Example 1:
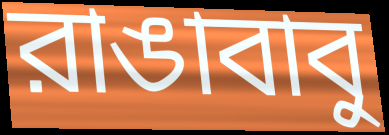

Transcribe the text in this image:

রাঙাবাবু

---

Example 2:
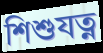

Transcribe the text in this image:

শিশুযত্ন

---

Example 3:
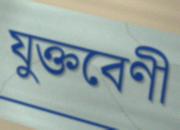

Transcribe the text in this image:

যুক্তবেণী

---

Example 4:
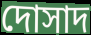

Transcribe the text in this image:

দোসাদ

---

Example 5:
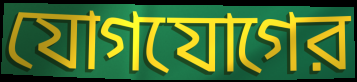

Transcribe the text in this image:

যোগযোগের